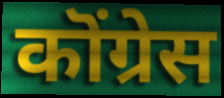
कॊंग्रेस